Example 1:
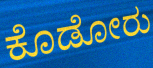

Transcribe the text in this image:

ಕೊಡೋರು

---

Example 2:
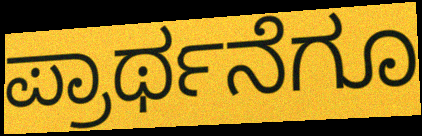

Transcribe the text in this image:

ಪ್ರಾರ್ಥನೆಗೂ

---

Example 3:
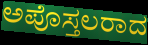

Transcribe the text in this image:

ಅಪೊಸ್ತಲರಾದ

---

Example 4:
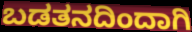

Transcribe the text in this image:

ಬಡತನದಿಂದಾಗಿ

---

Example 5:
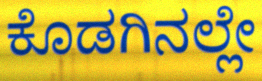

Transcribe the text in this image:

ಕೊಡಗಿನಲ್ಲೇ